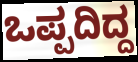
ಒಪ್ಪದಿದ್ದ